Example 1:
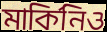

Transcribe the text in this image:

মার্কিনিও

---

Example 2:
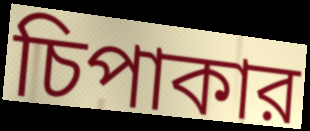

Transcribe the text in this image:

চিপাকার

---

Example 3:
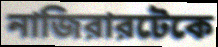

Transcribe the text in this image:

নাজিরারটেকে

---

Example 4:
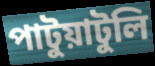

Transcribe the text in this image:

পাটুয়াটুলি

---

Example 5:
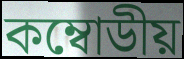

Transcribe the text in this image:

কম্বোডীয়